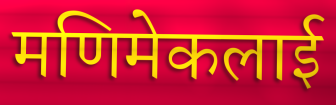
मणिमेकलाई